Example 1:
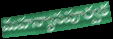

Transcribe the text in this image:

మహన్యాసపూర్వక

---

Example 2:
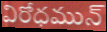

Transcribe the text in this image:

విరోధమున్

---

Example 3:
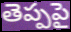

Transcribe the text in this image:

తెప్పపై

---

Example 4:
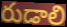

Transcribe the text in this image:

రుడాలి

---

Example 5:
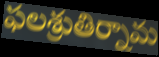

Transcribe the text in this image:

ఫలశ్రుతిర్నామ